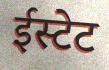
ईस्टेट